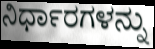
ನಿರ್ಧಾರಗಳನ್ನು